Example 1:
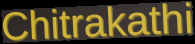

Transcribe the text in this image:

Chitrakathi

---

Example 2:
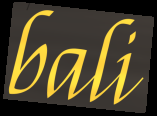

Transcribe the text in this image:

bali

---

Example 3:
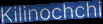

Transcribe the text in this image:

Kilinochchi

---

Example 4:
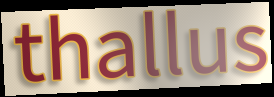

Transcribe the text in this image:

thallus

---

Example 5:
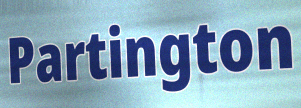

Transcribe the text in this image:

Partington